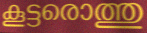
കൂട്ടരൊത്തു